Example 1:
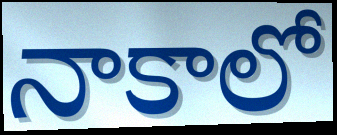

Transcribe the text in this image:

నాకాలో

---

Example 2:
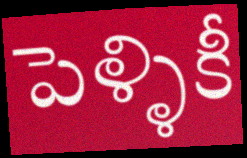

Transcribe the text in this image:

పెళ్ళికీ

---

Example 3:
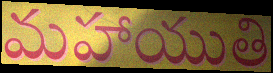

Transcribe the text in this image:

మహాయుతి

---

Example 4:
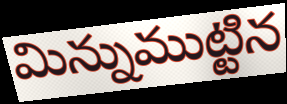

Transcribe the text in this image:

మిన్నుముట్టిన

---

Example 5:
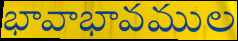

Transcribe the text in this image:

భావాభావముల